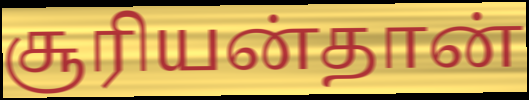
சூரியன்தான்